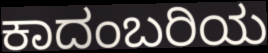
ಕಾದಂಬರಿಯ